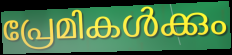
പ്രേമികൾക്കും